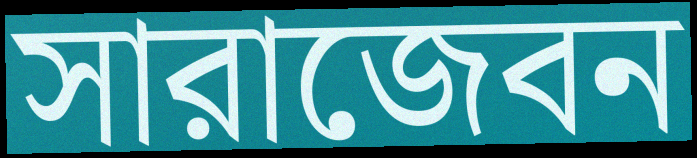
সারাজেবন